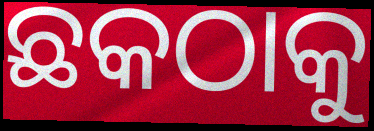
ଛକଠାକୁ